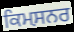
ਕਿਮ਼ਸਨਰ